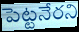
పెట్టనేరని